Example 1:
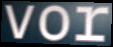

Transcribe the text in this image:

vor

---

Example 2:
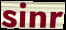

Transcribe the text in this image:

sinr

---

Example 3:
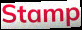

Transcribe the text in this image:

Stamp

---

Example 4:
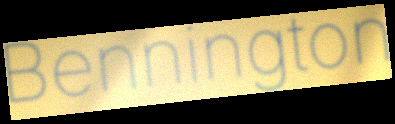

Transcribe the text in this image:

Bennington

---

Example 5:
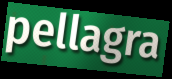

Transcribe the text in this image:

pellagra